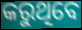
କରୁଥିବେ